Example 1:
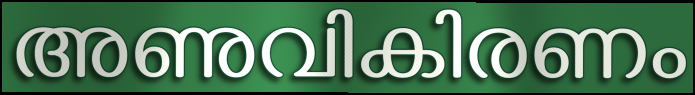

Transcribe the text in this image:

അണുവികിരണം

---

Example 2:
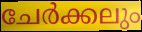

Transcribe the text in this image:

ചേർക്കലും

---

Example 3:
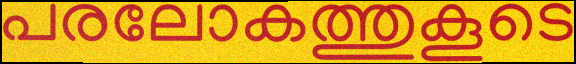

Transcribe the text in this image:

പരലോകത്തുകൂടെ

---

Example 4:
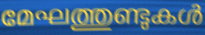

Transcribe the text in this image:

മേഘത്തുണ്ടുകൾ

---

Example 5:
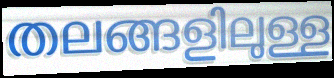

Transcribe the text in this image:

തലങ്ങളിലുള്ള